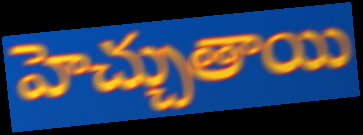
హెచ్చుతాయి